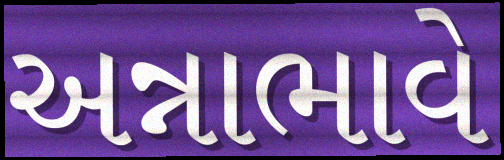
અન્નાભાવે